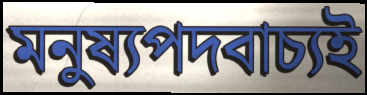
মনুষ্যপদবাচ্যই